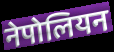
नेपोलियन